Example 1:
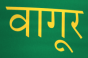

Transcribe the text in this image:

वागूर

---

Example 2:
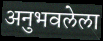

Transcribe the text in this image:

अनुभवलेला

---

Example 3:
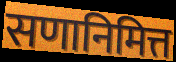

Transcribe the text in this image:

सणानिमित्त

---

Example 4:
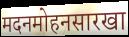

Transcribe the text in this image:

मदनमोहनसारखा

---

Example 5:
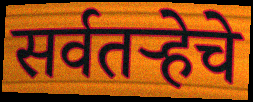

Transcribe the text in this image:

सर्वतऱ्हेचे